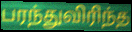
பரந்துவிரிந்த